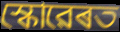
স্কোৱেৰত